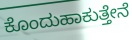
ಕೊಂದುಹಾಕುತ್ತೇನೆ